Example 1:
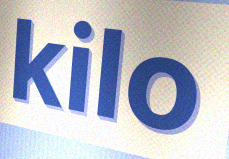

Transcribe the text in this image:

kilo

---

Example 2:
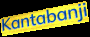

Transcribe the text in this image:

Kantabanji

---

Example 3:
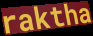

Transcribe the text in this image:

raktha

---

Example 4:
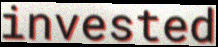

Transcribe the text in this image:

invested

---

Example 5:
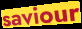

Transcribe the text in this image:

saviour